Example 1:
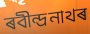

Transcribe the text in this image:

ৰবীন্দ্ৰনাথৰ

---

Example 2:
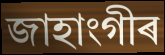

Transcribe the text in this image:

জাহাংগীৰ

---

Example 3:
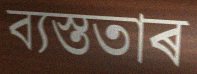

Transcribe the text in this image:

ব্যস্ততাৰ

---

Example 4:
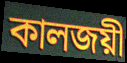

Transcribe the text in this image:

কালজয়ী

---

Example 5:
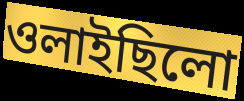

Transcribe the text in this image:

ওলাইছিলো